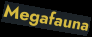
Megafauna